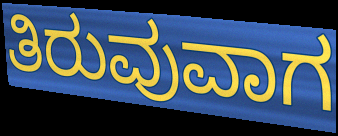
ತಿರುವುವಾಗ